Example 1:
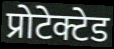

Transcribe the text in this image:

प्रोटेक्टेड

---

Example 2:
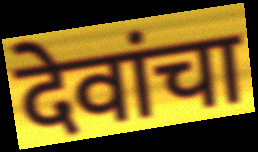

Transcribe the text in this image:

देवांचा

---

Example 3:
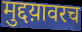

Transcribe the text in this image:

मुद्दय़ावरच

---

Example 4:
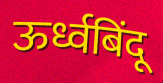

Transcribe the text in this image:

ऊर्ध्वबिंदू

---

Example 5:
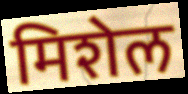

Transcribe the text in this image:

मिशेल